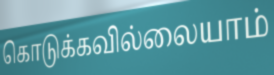
கொடுக்கவில்லையாம்